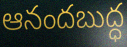
ఆనందబుద్ధ